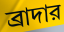
ব্রাদার